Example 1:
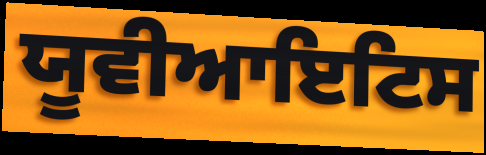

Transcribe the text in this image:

ਯੂਵੀਆਇਟਿਸ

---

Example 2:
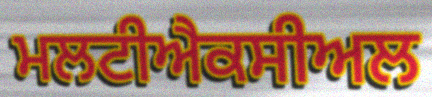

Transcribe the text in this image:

ਮਲਟੀਐਕਸੀਅਲ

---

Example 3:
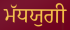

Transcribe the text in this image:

ਮੱਧਯੁਗੀ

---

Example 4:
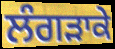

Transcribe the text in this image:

ਲੰਗੜਾਕੇ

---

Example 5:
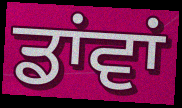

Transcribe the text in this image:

ਡਾਂਵਾਂ